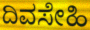
ದಿವಸೇಹಿ